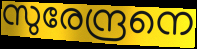
സുരേന്ദ്രനെ